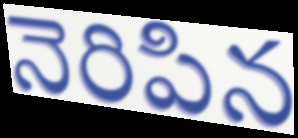
నెరిపిన